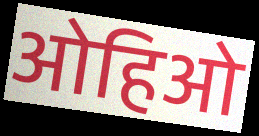
ओहिओ